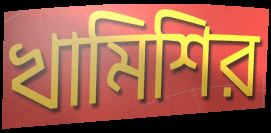
খামিশির